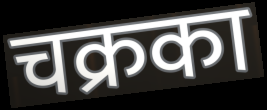
चक्रका